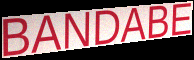
BANDABE